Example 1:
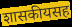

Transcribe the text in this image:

शासकीयसह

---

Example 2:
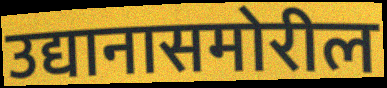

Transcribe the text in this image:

उद्यानासमोरील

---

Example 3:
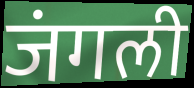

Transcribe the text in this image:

जंगली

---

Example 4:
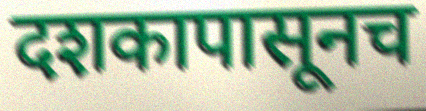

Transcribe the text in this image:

दशकापासूनच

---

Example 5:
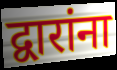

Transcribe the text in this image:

द्वारांना